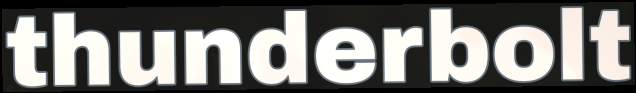
thunderbolt